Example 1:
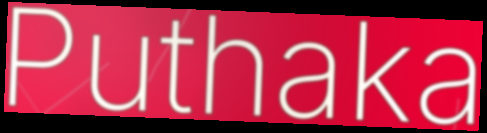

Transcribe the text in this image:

Puthaka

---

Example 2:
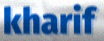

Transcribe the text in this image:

kharif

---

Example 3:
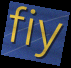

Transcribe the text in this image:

fiy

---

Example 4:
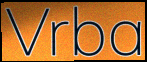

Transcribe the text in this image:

Vrba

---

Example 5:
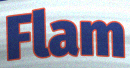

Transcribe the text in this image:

Flam